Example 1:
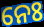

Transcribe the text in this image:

ନେଃ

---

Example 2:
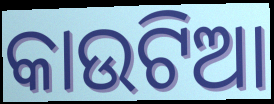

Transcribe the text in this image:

କାଉଟିଆ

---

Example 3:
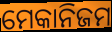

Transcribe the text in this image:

ମେକାନିଜମ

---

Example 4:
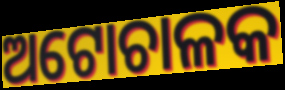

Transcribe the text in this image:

ଅଟୋଚାଳକ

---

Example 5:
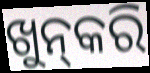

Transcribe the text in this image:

ଖୁନ୍‍କରି